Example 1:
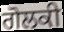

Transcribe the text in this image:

ਗੋਲਕੀ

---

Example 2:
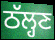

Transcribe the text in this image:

ਠੱਲ੍ਹਣ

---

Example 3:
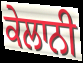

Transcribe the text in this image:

ਕੇਲਾਨੀ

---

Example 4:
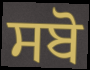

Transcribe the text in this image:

ਸਬੋ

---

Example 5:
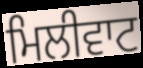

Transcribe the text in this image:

ਮਿਲੀਵਾਟ